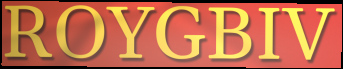
ROYGBIV